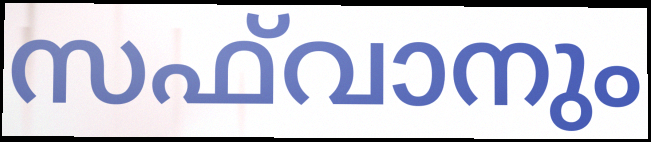
സഫ്‌വാനും